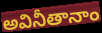
అవినీతానాం